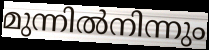
മുന്നിൽനിന്നും